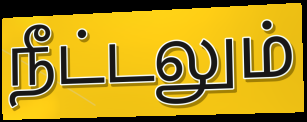
நீட்டலும்